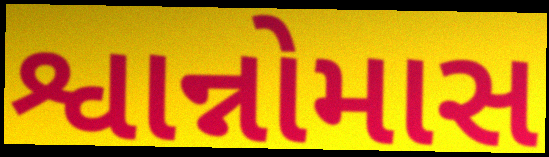
શ્વાન્નોમાસ